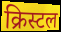
क्रिस्टल